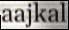
aajkal